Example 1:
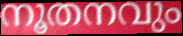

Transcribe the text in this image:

നൂതനവും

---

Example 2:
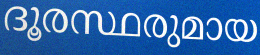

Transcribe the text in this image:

ദൂരസ്ഥരുമായ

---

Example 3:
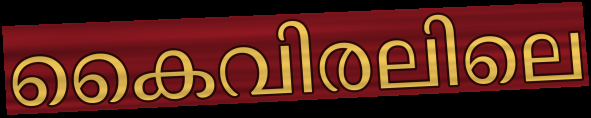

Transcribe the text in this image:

കൈവിരലിലെ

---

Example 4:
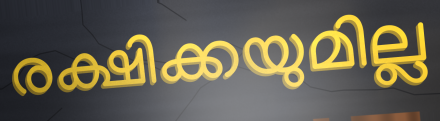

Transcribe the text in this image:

രക്ഷിക്കയുമില്ല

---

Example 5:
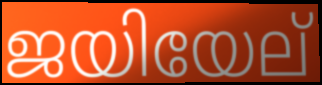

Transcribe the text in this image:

ജയിയേല്